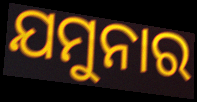
ଯମୁନାର